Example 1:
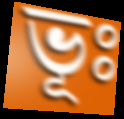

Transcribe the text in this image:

ভূঃ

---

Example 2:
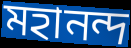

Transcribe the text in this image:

মহানন্দ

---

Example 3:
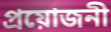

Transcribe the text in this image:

প্রয়োজনী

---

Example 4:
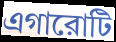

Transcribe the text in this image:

এগারোটি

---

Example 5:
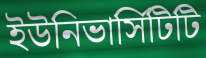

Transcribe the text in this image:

ইউনিভার্সিটিটি